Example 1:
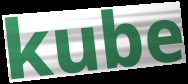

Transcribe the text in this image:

kube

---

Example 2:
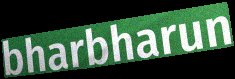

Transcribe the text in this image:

bharbharun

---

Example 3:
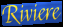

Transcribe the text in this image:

Riviere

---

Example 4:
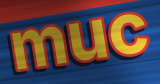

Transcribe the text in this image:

muc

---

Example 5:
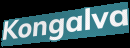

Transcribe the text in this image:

Kongalva